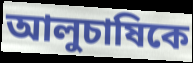
আলুচাষিকে